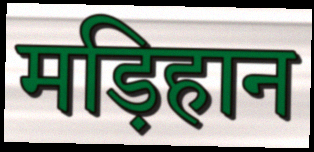
मड़िहान